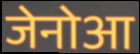
जेनोआ